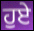
ਹੁਏ